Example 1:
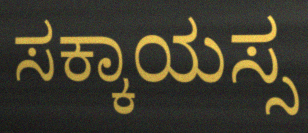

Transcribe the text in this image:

ಸಕ್ಕಾಯಸ್ಸ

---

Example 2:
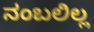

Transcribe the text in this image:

ನಂಬಲಿಲ್ಲ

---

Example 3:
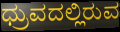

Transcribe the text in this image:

ಧ್ರುವದಲ್ಲಿರುವ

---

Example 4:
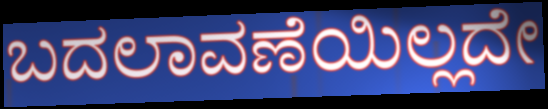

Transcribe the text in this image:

ಬದಲಾವಣೆಯಿಲ್ಲದೇ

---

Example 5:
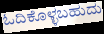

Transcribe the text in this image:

ಓದಿಕೊಳ್ಳಬಹುದು